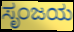
ಸೃಂಜಯ